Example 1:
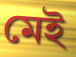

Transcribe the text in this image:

মেই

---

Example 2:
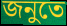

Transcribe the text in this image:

জনুতে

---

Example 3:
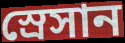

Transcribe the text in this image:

স্রেসান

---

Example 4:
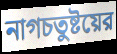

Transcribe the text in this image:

নাগচতুষ্টয়ের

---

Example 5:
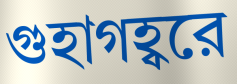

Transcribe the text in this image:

গুহাগহ্বরে